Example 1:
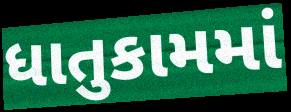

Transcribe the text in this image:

ધાતુકામમાં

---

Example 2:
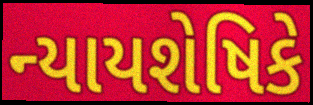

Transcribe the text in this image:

ન્યાયશેષિકે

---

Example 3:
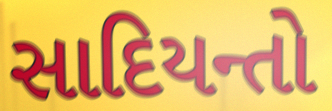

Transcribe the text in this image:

સાદિયન્તો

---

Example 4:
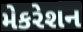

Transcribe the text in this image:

મેકરેશન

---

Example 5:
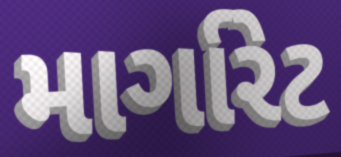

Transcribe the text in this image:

માર્ગારેટ